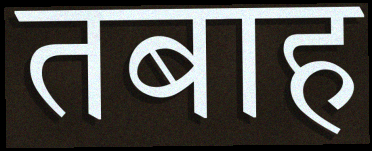
तबाह